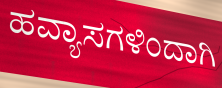
ಹವ್ಯಾಸಗಳಿಂದಾಗಿ